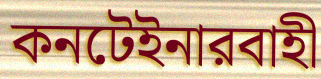
কনটেইনারবাহী